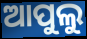
ଆପୁଲୁ